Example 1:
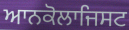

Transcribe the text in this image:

ਆਨਕੋਲਾਜਿਸਟ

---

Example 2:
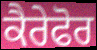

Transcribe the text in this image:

ਕੈਰੇਫੋਰ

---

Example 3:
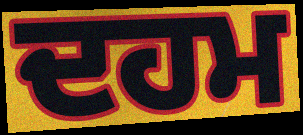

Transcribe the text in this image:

ਦਹਮ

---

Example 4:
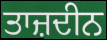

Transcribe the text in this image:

ਤਾਜ਼ਦੀਨ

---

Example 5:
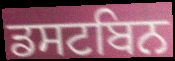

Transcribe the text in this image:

ਡਸਟਬਿਨ